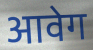
आवेग